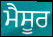
ਮੈਸੂਰ